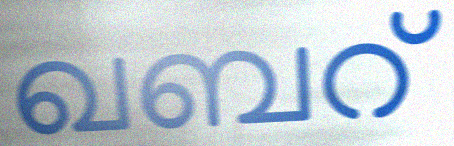
ഖബറ്